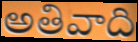
అతివాది